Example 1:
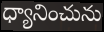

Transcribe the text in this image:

ధ్యానించును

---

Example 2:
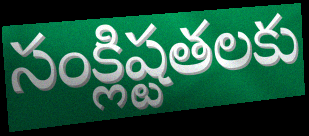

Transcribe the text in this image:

సంక్లిష్టతలకు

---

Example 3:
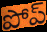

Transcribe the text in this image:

పోప్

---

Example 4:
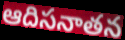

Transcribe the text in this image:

ఆదిసనాతన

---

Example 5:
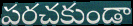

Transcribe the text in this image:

పరచకుండా